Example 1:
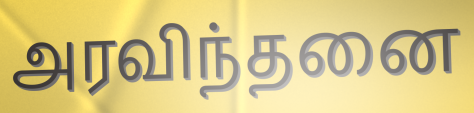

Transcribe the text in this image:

அரவிந்தனை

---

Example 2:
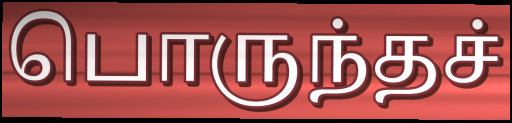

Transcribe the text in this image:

பொருந்தச்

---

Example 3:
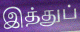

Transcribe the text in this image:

இத்துப்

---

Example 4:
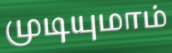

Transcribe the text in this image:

முடியுமாம்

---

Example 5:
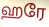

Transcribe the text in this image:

ஹரே